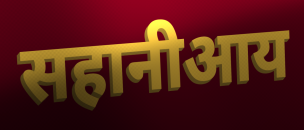
सहानीआय